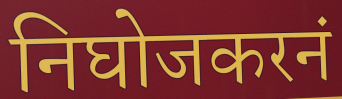
निघोजकरनं